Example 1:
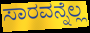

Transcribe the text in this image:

ಸಾರವನ್ನೆಲ್ಲ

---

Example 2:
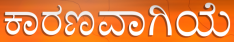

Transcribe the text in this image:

ಕಾರಣವಾಗಿಯೆ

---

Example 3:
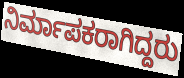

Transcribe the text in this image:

ನಿರ್ಮಾಪಕರಾಗಿದ್ದರು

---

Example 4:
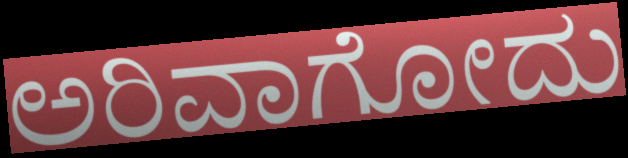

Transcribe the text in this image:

ಅರಿವಾಗೋದು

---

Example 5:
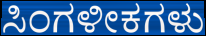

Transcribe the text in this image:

ಸಿಂಗಳೀಕಗಳು